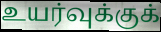
உயர்வுக்குக்